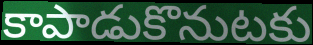
కాపాడుకొనుటకు